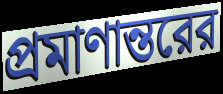
প্রমাণান্তরের